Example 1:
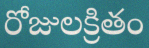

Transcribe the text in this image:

రోజులక్రితం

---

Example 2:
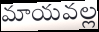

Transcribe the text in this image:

మాయవల్ల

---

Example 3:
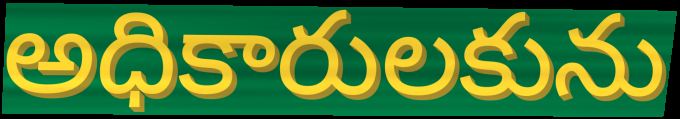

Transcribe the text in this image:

అధికారులకును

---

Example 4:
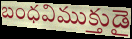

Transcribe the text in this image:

బంధవిముక్తుడై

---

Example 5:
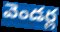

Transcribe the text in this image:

వెండర్ల